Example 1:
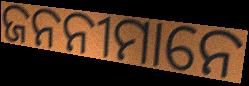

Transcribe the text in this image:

ଜନନୀମାନେ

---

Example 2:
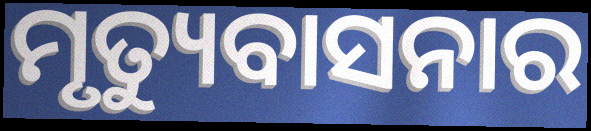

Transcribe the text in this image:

ମୃତ୍ୟୁବାସନାର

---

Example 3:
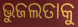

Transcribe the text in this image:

ଭୁଜଲତାକୁ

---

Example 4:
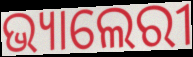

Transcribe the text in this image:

ଭ୍ୟାଲେରୀ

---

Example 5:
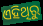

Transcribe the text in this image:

ଏହିଥିରୁ